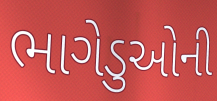
ભાગેડુઓની